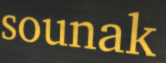
sounak